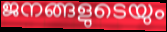
ജനങ്ങളുടെയും